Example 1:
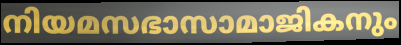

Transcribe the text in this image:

നിയമസഭാസാമാജികനും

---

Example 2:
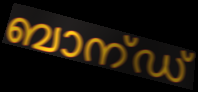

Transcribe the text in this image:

ബാന്ഡ്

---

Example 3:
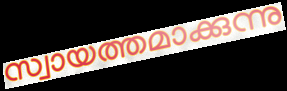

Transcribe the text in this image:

സ്വായത്തമാക്കുന്നു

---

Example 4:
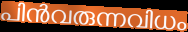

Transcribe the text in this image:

പിൻവരുന്നവിധം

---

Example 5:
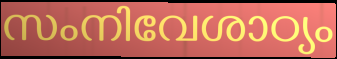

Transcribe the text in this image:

സംനിവേശാഠ്യം